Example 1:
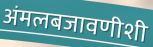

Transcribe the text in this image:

अंमलबजावणीशी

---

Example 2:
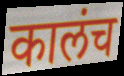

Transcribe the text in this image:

कालंच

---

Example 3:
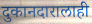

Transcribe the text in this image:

दुकानदारालाही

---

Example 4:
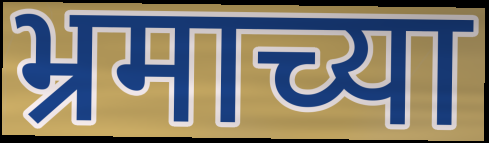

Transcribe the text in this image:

भ्रमाच्या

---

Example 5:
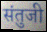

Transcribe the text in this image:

संतुजी